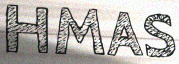
HMAS